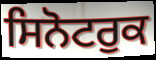
ਸਿਨੋਟਰੁਕ